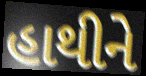
હાથીને